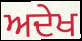
ਅਦੇਖ